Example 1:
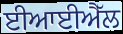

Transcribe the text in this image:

ਈਆਈਐੱਲ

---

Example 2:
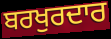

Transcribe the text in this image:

ਬਰਖੁਰਦਾਰ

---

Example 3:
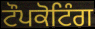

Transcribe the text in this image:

ਟੌਪਕੋਟਿੰਗ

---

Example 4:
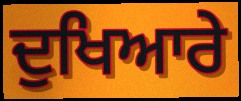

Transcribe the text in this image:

ਦੁਖਿਆਰੇ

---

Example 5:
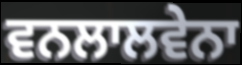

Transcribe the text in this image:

ਵਨਲਾਲਵੇਨਾ